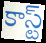
కాస్ట్